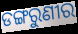
ଡଙ୍ଗରୁଣୀର